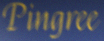
Pingree